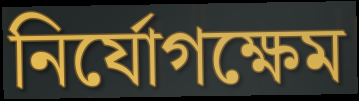
নির্যোগক্ষেম